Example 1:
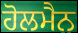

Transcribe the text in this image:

ਹੋਲਮੈਨ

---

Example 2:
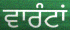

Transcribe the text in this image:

ਵਾਰੰਟਾਂ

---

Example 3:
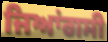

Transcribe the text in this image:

ਜਿਆਂਗਸੀ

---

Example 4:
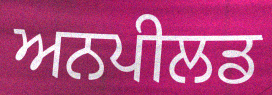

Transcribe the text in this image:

ਅਨਪੀਲਡ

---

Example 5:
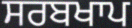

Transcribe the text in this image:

ਸਰਬਖਾਪ